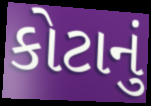
કોટાનું